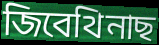
জিবেথিনাছ